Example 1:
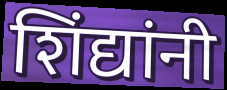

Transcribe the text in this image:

शिंद्यांनी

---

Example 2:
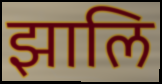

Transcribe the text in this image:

झालि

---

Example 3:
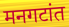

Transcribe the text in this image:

मनगटांत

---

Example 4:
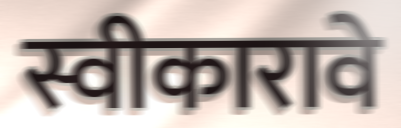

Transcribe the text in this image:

स्वीकारावे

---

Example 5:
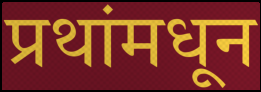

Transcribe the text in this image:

प्रथांमधून